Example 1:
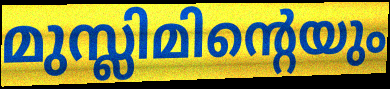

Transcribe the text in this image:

മുസ്ലിമിന്റെയും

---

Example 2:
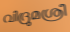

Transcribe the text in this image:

വിദ്രുമശ്രീ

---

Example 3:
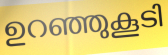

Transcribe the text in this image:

ഉറഞ്ഞുകൂടി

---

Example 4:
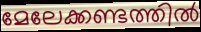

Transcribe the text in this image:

മേലേക്കണ്ടത്തിൽ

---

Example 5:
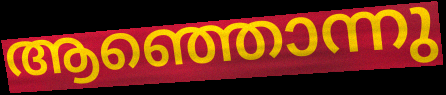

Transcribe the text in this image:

ആഞ്ഞൊന്നു